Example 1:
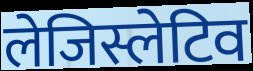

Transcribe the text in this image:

लेजिस्लेटिव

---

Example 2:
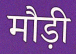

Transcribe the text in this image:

मौड़ी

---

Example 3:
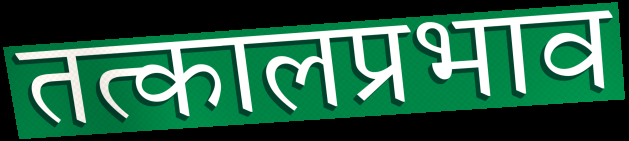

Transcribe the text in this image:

तत्कालप्रभाव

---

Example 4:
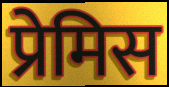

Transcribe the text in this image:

प्रेमिस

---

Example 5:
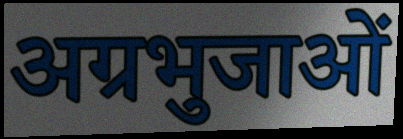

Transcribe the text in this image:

अग्रभुजाओं